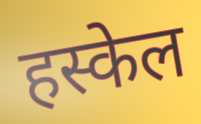
हस्केल